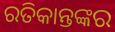
ରତିକାନ୍ତଙ୍କର